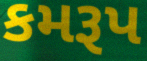
કમરૂપ